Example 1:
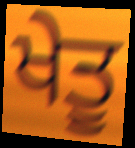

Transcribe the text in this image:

ਖੇਤੂ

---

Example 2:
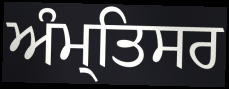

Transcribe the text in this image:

ਅੰਮ੍ਤਿਸਰ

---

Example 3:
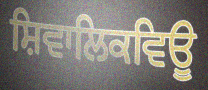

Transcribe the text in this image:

ਸ਼ਿਵਾਲਿਕਵਿਊ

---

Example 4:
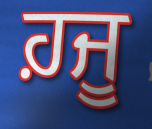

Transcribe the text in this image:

ਹ਼ਜੂ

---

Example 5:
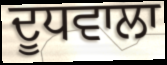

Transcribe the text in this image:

ਦੂਧਵਾਲਾ